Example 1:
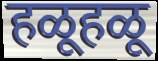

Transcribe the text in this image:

हळूहळू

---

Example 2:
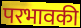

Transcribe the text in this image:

परभावकी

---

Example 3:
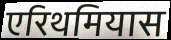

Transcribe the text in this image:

एरिथमियास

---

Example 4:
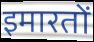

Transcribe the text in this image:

इमारतों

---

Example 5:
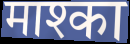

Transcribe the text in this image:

माश्का